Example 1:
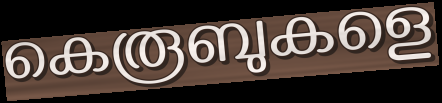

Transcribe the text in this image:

കെരൂബുകളെ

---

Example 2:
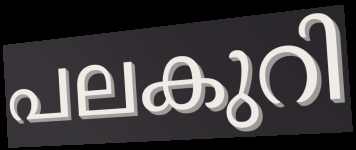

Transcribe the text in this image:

പലകുറി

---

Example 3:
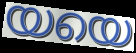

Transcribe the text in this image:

യയെ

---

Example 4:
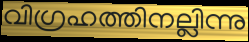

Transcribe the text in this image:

വിഗ്രഹത്തിനല്ലിന്നു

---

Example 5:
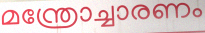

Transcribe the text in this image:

മന്ത്രോച്ചാരണം